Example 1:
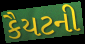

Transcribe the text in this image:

કૈયટની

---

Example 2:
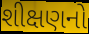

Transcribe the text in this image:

શીક્ષણનો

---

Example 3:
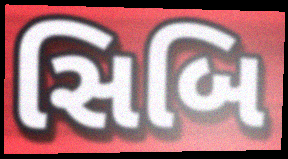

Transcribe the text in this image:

સિબિ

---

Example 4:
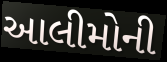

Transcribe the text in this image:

આલીમોની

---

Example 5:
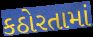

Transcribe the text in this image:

કઠોરતામાં